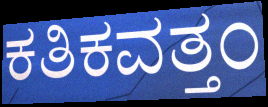
ಕತಿಕವತ್ತಂ